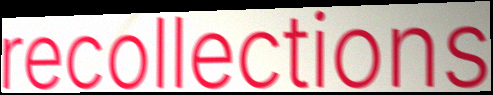
recollections